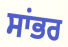
ਸਾਂਭਰ